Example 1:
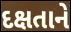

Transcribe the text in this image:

દક્ષતાને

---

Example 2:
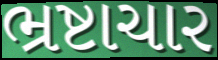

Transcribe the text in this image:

ભ્રષ્ટાચાર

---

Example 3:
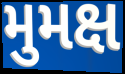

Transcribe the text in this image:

મુમક્ષ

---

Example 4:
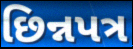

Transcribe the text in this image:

છિન્નપત્ર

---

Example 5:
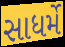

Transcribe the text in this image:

સાધર્મે